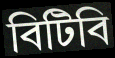
বিটিবি